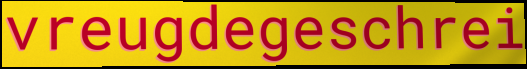
vreugdegeschrei